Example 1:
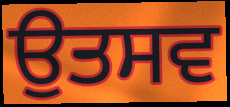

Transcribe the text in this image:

ਉਤਸਵ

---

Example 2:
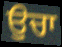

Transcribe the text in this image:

ਉਚਾ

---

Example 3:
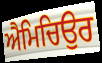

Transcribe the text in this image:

ਐਮਿਚਿਉਰ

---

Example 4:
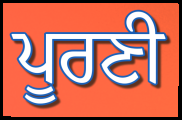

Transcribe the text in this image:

ਪੂਰਣੀ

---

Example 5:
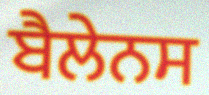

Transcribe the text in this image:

ਬੈਲੇਨਸ